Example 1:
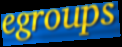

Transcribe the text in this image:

egroups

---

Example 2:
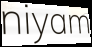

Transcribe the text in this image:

niyam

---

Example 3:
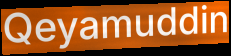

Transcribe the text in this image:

Qeyamuddin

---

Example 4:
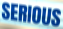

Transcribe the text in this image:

SERIOUS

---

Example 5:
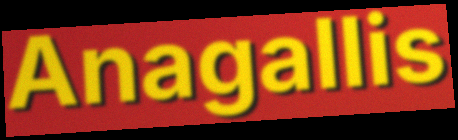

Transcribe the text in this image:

Anagallis